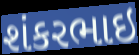
શંકરભાઇ